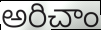
అరిచాం